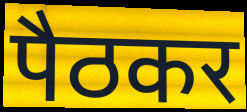
पैठकर